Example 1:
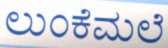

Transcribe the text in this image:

ಲುಂಕೆಮಲೆ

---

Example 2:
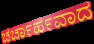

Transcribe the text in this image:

ಚರ್ಚಾರ್ಹವಾದ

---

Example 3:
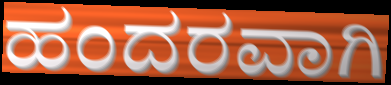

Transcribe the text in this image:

ಹಂದರವಾಗಿ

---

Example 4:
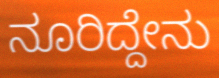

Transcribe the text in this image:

ನೂರಿದ್ದೇನು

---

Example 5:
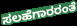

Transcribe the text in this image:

ಸಲಹೆಗಾರರಂತೆ